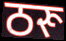
ठरू